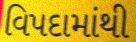
વિપદામાંથી